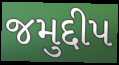
જમુદ્દીપ